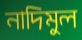
নাদিমুল